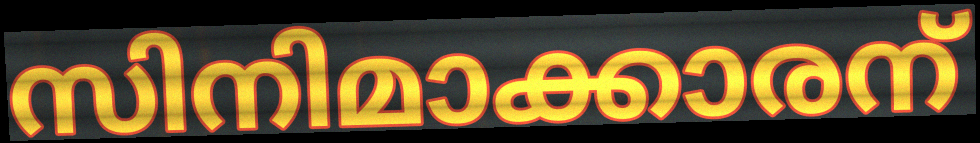
സിനിമാക്കാരന്